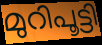
മുറിപൂട്ടി